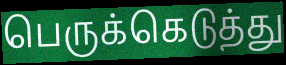
பெருக்கெடுத்து